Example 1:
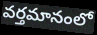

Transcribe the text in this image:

వర్తమానంలో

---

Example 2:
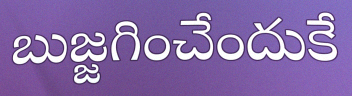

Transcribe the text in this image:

బుజ్జగించేందుకే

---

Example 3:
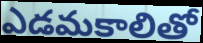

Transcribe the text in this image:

ఎడమకాలితో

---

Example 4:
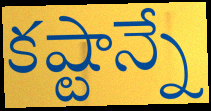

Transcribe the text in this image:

కష్టాన్నే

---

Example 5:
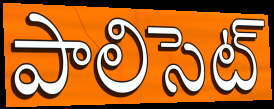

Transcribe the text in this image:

పాలిసెట్